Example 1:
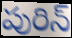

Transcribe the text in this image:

పురిన్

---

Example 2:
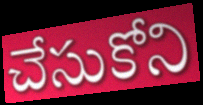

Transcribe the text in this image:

చేసుకోని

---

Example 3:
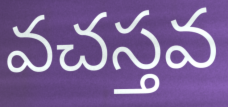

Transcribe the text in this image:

వచస్తవ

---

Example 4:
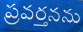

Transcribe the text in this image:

ప్రవర్తనను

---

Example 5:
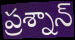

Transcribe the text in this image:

ప్రశ్నాన్